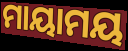
ମାୟାମୟ